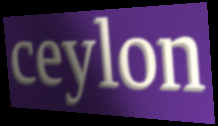
ceylon